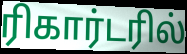
ரிகார்டரில்